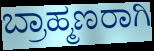
ಬ್ರಾಹ್ಮಣರಾಗಿ